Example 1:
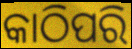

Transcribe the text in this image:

କାଠିପରି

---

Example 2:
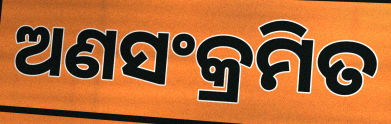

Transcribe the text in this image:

ଅଣସଂକ୍ରମିତ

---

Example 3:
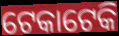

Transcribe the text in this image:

ଟେକାଟେକି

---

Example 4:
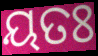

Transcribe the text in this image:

ୟତଃ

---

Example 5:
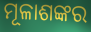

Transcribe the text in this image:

ମୂଳାଶଙ୍କର